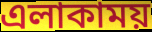
এলাকাময়